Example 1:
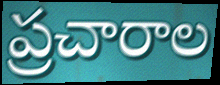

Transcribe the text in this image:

ప్రచారాల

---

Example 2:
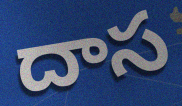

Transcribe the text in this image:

దాస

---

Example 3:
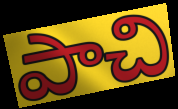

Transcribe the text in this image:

పాచి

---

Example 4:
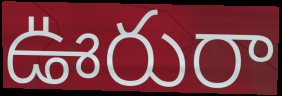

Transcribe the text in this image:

ఊరురా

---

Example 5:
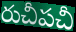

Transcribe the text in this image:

రుచీపచీ